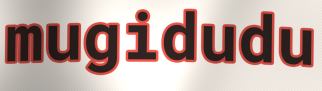
mugidudu